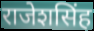
राजेशसिंह